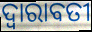
ଦ୍ଵାରାବତୀ